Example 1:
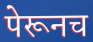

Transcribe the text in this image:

पेरूनच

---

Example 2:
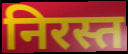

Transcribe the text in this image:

निरस्त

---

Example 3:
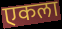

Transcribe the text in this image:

एकला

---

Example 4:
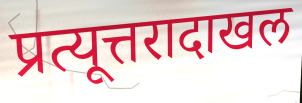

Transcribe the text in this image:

प्रत्यूत्तरादाखल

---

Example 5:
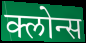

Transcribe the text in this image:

क्लोन्स